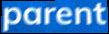
parent